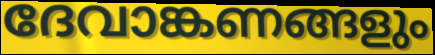
ദേവാങ്കണങ്ങളും